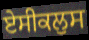
ਏਸੀਕਲੁਸ